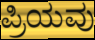
ಪ್ರಿಯವು